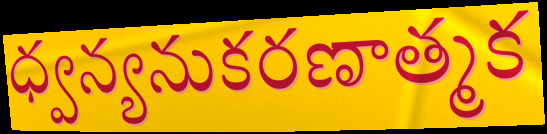
ధ్వన్యనుకరణాత్మక